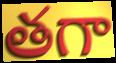
తగా